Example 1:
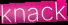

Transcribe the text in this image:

knack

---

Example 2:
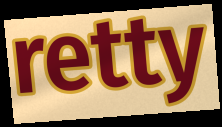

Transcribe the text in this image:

retty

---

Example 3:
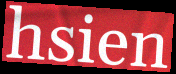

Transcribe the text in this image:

hsien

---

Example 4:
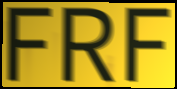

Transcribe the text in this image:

FRF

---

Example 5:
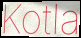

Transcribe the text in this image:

Kotla